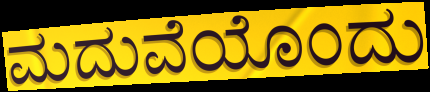
ಮದುವೆಯೊಂದು